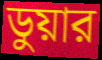
ডুয়ার